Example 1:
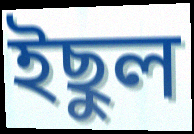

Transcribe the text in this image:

ইছুল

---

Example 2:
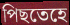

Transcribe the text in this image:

পিছতেহে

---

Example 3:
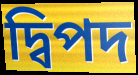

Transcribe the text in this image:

দ্বিপদ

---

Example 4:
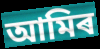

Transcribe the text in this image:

আমিৰ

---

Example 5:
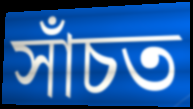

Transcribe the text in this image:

সাঁচত